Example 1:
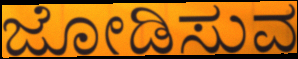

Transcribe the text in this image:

ಜೋಡಿಸುವ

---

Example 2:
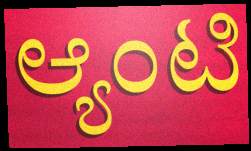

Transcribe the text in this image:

ಆ್ಯಂಟಿ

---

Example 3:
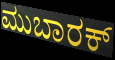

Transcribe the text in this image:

ಮುಬಾರಕ್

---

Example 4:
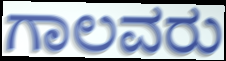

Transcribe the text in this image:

ಗಾಲವರು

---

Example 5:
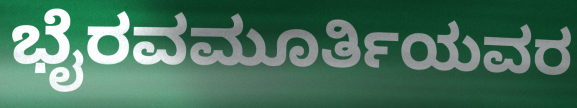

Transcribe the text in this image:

ಭೈರವಮೂರ್ತಿಯವರ